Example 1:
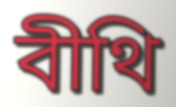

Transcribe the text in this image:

বীথি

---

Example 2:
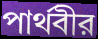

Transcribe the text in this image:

পার্থবীর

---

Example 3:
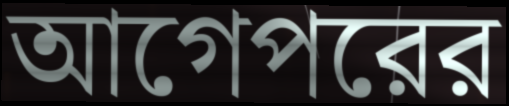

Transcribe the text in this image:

আগেপরের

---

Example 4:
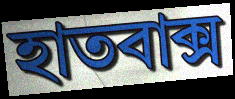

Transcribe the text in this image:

হাতবাক্স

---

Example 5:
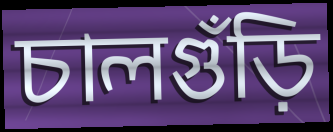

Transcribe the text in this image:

চালগুঁড়ি